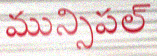
మున్సిపల్